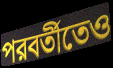
পরবর্তীতেও